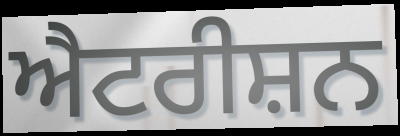
ਐਟਰੀਸ਼ਨ